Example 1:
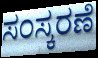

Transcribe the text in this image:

ಸಂಸ್ಕರಣೆ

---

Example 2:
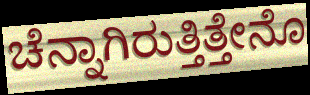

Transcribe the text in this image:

ಚೆನ್ನಾಗಿರುತ್ತಿತ್ತೇನೊ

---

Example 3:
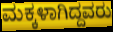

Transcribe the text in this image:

ಮಕ್ಕಳಾಗಿದ್ದವರು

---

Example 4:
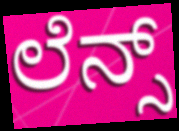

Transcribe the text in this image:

ಲೆನ್ಸ್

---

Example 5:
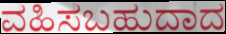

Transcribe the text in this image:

ವಹಿಸಬಹುದಾದ